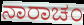
ನಾರಾಚಂ